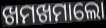
ଖମଖମାଲୋ